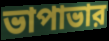
ভাপাভার